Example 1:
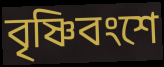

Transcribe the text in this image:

বৃষ্ণিবংশে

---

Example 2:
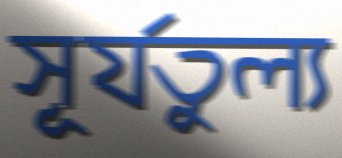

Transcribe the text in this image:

সূর্যতুল্য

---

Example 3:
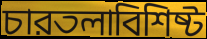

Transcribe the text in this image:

চারতলাবিশিষ্ট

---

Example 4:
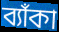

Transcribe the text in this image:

ব্যাঁকা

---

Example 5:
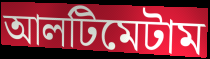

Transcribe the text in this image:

আলটিমেটাম